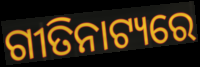
ଗୀତିନାଟ୍ୟରେ